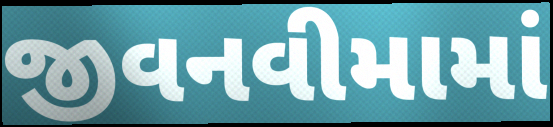
જીવનવીમામાં